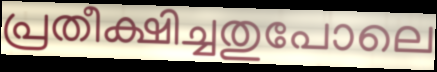
പ്രതീക്ഷിച്ചതുപോലെ